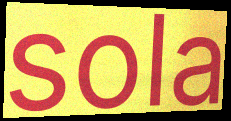
sola